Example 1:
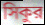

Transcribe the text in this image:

সিকুর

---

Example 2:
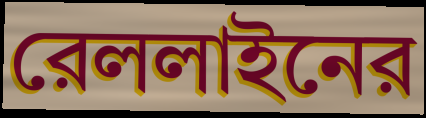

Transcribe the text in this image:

রেললাইনের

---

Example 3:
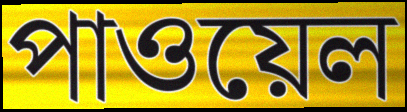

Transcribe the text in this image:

পাওয়েল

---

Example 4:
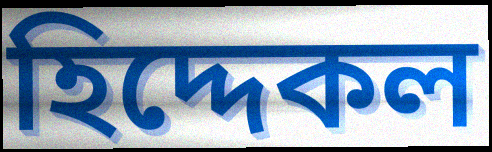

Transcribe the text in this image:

হিদ্দেকল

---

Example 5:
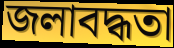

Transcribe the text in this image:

জলাবদ্ধতা